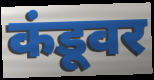
कंडूवर